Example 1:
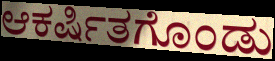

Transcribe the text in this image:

ಆಕರ್ಷಿತಗೊಂಡು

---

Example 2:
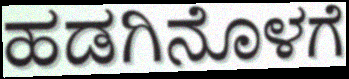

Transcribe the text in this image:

ಹಡಗಿನೊಳಗೆ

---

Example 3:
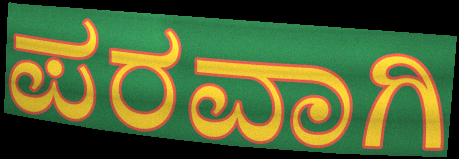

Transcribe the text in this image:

ಪರವಾಗಿ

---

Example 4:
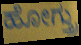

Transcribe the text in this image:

ಹೋಗ್ತ್ರು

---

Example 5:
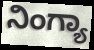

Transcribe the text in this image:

ನಿಂಗ್ಯಾ